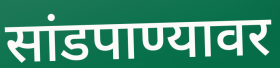
सांडपाण्यावर